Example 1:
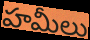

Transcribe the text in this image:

హమీలు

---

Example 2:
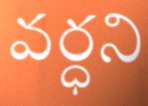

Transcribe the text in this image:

వర్ధని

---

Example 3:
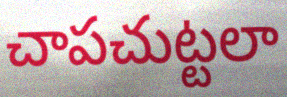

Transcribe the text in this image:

చాపచుట్టలా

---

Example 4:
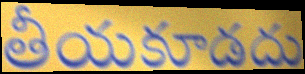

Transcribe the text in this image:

తీయకూడదు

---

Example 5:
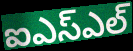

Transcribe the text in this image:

ఐఎస్ఎల్